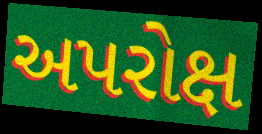
અપરોક્ષ